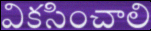
వికసించాలి